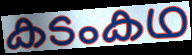
കടംകഥ